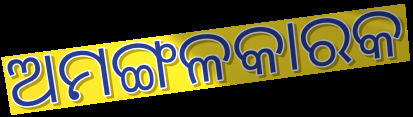
ଅମଙ୍ଗଳକାରକ